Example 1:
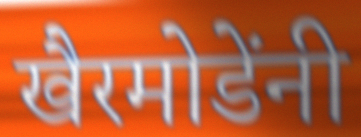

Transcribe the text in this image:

खैरमोडेंनी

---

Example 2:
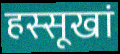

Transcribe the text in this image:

हस्सूखां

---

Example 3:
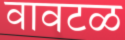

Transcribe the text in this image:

वावटळ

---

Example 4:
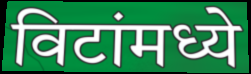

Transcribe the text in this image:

विटांमध्ये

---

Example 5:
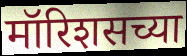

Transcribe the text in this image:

मॉरिशसच्या